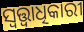
ସ୍ବତ୍ତ୍ବାଧିକାରୀ